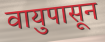
वायुपासून